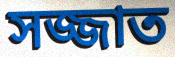
সজ্জাত